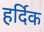
हर्दिक